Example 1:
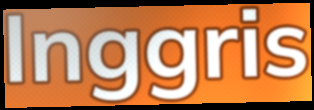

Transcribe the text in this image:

Inggris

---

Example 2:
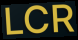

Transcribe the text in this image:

LCR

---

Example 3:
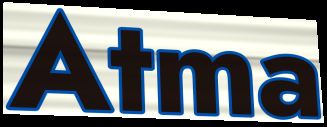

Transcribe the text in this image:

Atma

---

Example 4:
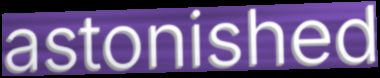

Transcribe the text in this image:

astonished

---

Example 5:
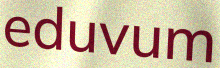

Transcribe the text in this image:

eduvum